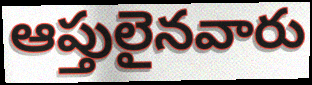
ఆప్తులైనవారు